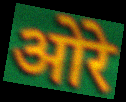
ओरे